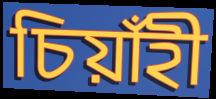
চিয়াঁহী